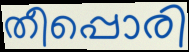
തീപ്പൊരി